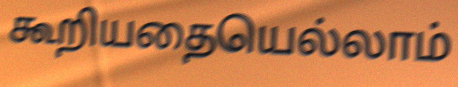
கூறியதையெல்லாம்